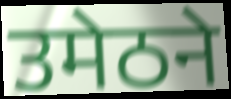
उमेठने